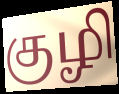
குழி